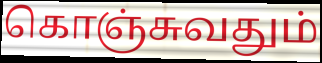
கொஞ்சுவதும்